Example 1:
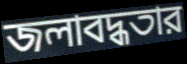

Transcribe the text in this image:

জলাবদ্ধতার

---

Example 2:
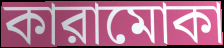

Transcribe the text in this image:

কারামোকা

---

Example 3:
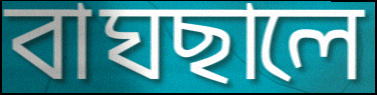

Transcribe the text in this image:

বাঘছালে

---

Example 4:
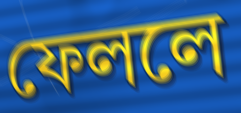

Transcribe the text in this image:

ফেললে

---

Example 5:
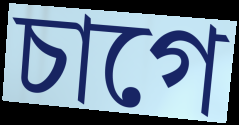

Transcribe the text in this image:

চাগে